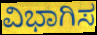
ವಿಭಾಗಿಸ